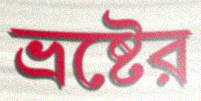
ভ্রষ্টের